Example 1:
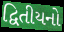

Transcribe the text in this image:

દ્વિતીયનો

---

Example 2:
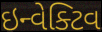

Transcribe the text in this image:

ઇન્વેક્ટિવ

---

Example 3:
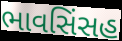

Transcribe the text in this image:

ભાવસિંસહ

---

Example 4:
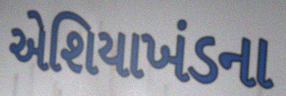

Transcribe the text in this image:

એશિયાખંડના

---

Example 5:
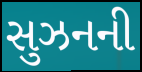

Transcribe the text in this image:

સુઝનની